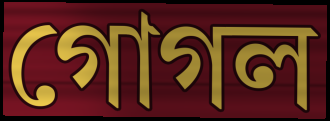
গোগল